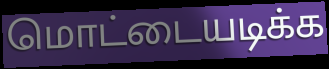
மொட்டையடிக்க